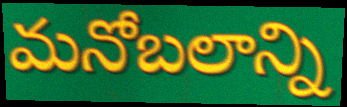
మనోబలాన్ని